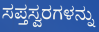
ಸಪ್ತಸ್ವರಗಳನ್ನು